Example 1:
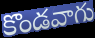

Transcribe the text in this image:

కొండవాగు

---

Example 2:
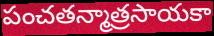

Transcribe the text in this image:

పంచతన్మాత్రసాయకా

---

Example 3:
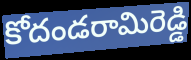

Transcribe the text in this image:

కోదండరామిరెడ్డి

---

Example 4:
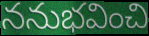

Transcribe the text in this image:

ననుభవించి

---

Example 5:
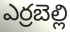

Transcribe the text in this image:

ఎర్రబెల్లి